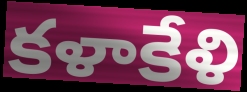
కళాకేళి